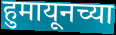
हुमायूनच्या